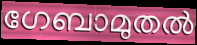
ഗേബാമുതൽ